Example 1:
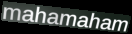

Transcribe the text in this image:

mahamaham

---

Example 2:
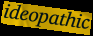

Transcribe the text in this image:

ideopathic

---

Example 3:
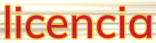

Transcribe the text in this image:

licencia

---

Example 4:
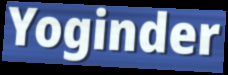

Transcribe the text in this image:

Yoginder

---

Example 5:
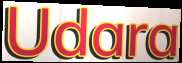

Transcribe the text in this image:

Udara